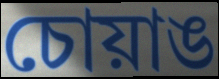
চোয়াঙ